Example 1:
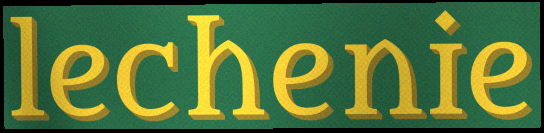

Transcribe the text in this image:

lechenie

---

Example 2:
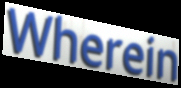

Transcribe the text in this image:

Wherein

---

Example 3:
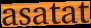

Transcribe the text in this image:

asatat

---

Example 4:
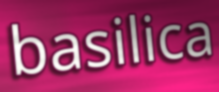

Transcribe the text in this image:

basilica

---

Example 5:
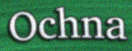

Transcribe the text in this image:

Ochna